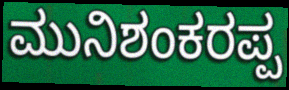
ಮುನಿಶಂಕರಪ್ಪ